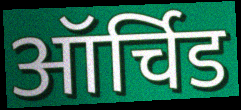
ऑर्चिड